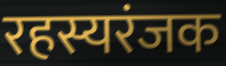
रहस्यरंजक